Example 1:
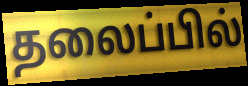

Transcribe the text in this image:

தலைப்பில்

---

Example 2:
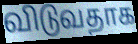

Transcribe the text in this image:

விடுவதாக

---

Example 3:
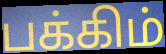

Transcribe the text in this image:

பக்கிம்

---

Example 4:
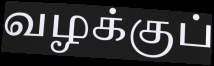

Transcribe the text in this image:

வழக்குப்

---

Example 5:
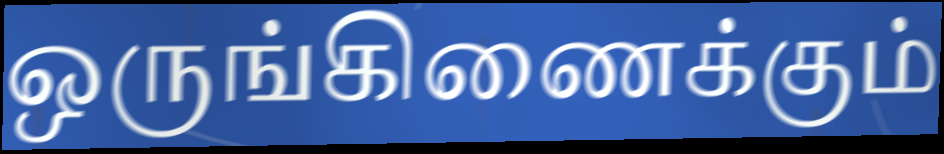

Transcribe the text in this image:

ஒருங்கிணைக்கும்